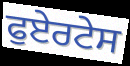
ਫੁਏਰਟੇਸ